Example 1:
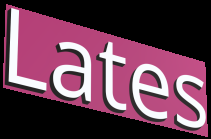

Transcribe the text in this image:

Lates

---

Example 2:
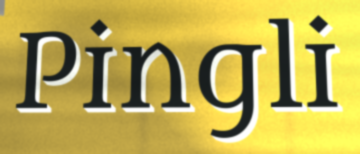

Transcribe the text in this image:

Pingli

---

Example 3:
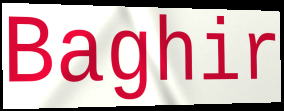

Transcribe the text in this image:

Baghir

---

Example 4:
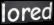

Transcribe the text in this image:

lored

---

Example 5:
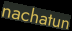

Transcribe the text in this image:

nachatun